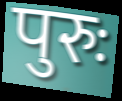
पुरुः